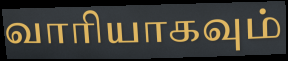
வாரியாகவும்